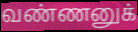
வண்ணனுக்